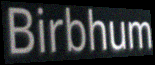
Birbhum